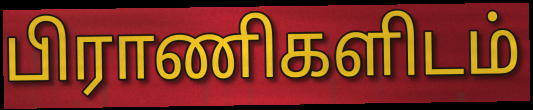
பிராணிகளிடம்